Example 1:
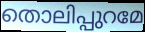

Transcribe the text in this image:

തൊലിപ്പുറമേ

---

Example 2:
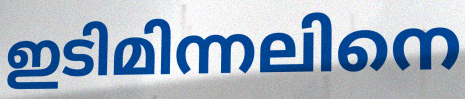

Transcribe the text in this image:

ഇടിമിന്നലിനെ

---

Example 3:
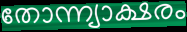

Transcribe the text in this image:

തോന്ന്യാക്ഷരം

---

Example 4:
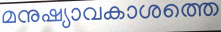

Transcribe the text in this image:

മനുഷ്യാവകാശത്തെ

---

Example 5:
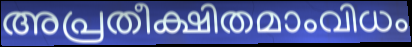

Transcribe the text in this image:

അപ്രതീക്ഷിതമാംവിധം